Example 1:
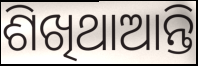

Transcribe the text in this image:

ଶିଖିଥାଆନ୍ତି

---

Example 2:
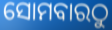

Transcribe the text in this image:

ସୋମବାରଠୁ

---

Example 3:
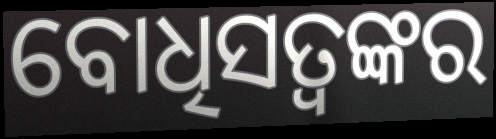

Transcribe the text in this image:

ବୋଧିସତ୍ୱଙ୍କର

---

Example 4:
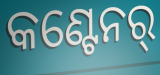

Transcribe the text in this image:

କଣ୍ଟେନର୍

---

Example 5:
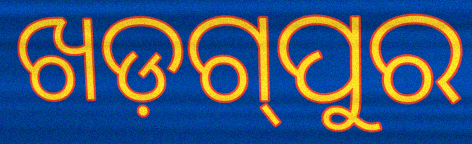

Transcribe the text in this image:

ଖଡ଼ଗ୍‌ପୁର